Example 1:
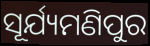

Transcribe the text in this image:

ସୂର୍ଯ୍ୟମଣିପୁର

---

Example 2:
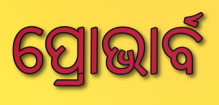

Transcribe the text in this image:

ପ୍ରୋଭାର୍ବ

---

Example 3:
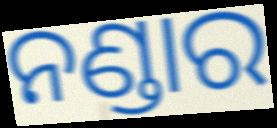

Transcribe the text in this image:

ନଣ୍ଡାର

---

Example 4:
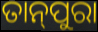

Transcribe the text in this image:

ତାନ୍‌ପୁରା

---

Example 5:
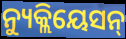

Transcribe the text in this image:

ନ୍ୟୁକ୍ଲିୟେସନ୍